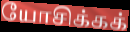
யோசிக்கக்